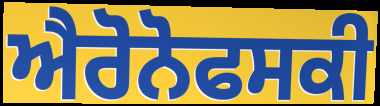
ਐਰੋਨੋਫਸਕੀ